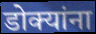
डोक्यांना